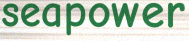
seapower